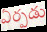
ఏర్పడు